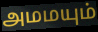
அமமயும்